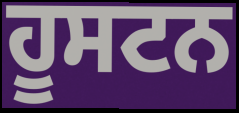
ਹੂਸਟਨ